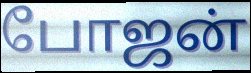
போஜன்